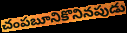
చంపబూనికొనినపుడు